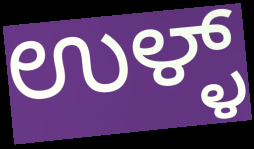
ಉಳ್ಳ್